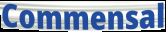
Commensal